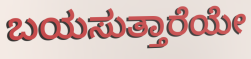
ಬಯಸುತ್ತಾರೆಯೇ